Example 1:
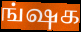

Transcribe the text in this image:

ங்ஷக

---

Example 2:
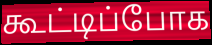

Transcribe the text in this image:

கூட்டிப்போக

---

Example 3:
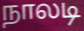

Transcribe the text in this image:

நாலடி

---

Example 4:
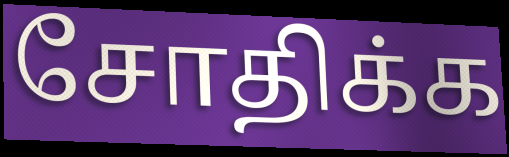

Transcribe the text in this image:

சோதிக்க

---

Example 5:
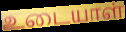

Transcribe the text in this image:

உடையாள்